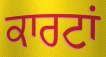
ਕਾਰਟਾਂ